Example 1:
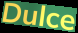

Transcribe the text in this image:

Dulce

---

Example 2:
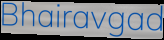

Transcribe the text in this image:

Bhairavgad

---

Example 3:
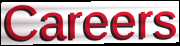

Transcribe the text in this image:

Careers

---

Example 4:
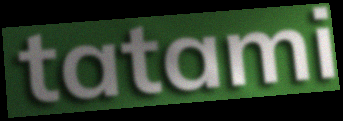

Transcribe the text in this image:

tatami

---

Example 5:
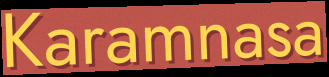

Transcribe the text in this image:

Karamnasa